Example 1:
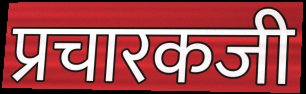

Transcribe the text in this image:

प्रचारकजी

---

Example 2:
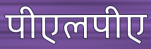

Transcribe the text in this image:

पीएलपीए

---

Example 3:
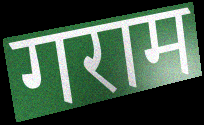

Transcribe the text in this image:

गराम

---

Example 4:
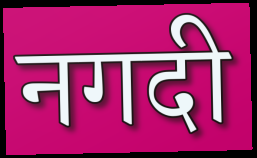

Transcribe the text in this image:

नगदी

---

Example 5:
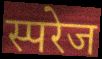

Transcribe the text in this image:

स्परेज